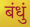
बंधुं